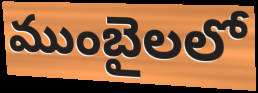
ముంబైలలో